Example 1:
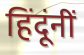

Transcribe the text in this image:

हिंदूंनीं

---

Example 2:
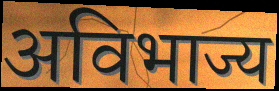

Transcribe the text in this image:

अविभाज्य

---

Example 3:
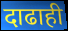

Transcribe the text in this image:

दाढाही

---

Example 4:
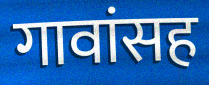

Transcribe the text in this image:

गावांसह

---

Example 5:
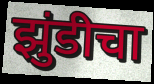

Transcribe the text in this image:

झुंडीचा